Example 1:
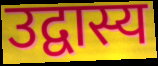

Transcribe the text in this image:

उद्वास्य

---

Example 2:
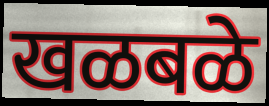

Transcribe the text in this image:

खळबळे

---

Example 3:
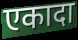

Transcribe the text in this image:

एकादा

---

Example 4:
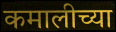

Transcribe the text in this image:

कमालीच्या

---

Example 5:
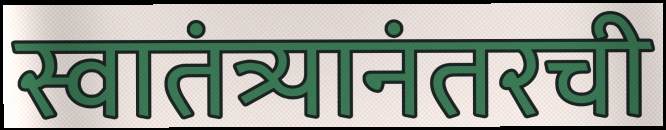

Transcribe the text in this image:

स्वातंत्र्यानंतरची